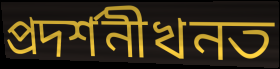
প্ৰদৰ্শনীখনত